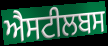
ਐਸਟੀਲਬਸ